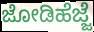
ಜೋಡಿಹೆಜ್ಜೆ